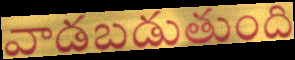
వాడబడుతుంది